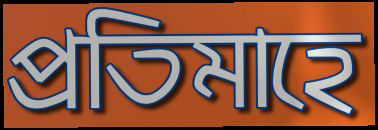
প্ৰতিমাহে